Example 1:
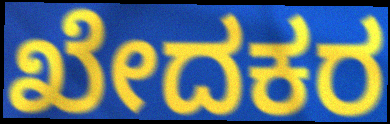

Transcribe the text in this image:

ಖೇದಕರ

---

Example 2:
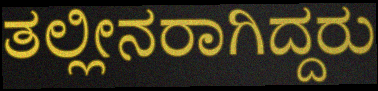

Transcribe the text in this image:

ತಲ್ಲೀನರಾಗಿದ್ದರು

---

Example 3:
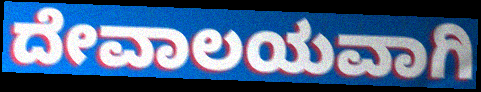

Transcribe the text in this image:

ದೇವಾಲಯವಾಗಿ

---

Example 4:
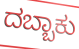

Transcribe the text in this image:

ದಬ್ಬಾಕು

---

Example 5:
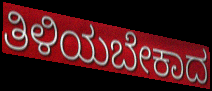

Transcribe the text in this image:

ತಿಳಿಯಬೇಕಾದ